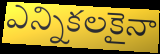
ఎన్నికలకైనా